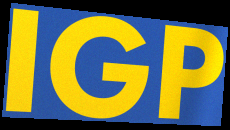
IGP